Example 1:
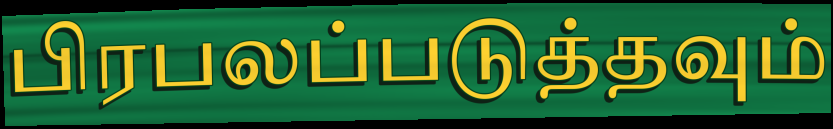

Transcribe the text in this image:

பிரபலப்படுத்தவும்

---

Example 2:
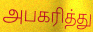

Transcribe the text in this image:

அபகரித்து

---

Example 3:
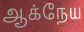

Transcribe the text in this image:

ஆக்நேய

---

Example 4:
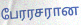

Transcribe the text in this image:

பேரரசரான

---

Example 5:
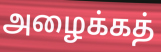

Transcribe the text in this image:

அழைக்கத்